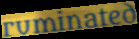
ruminated